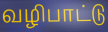
வழிபாட்டு